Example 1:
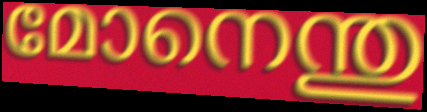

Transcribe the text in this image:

മോനെന്തു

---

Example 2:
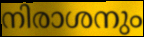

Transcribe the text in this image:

നിരാശനും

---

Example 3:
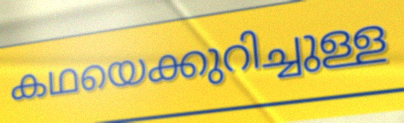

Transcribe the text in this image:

കഥയെക്കുറിച്ചുള്ള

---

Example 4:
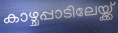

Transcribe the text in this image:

കാഴ്ചപ്പാടിലേയ്ക്ക്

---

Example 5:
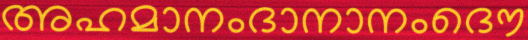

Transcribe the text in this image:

അഹമാനംദാനാനംദൌ